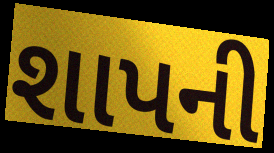
શાપની